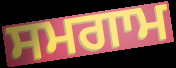
ਸਮਗਾਮ